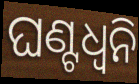
ଘଣ୍ଟଧ୍ୱନି